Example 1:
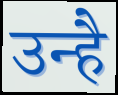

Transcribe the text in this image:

उन्है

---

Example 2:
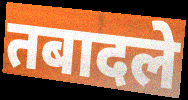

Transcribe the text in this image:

तबादले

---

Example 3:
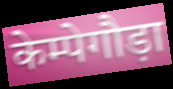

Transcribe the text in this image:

केम्पेगौड़ा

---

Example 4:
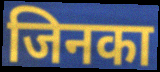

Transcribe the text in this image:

जिनका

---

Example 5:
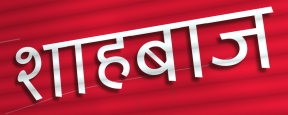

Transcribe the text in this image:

शाहबाज